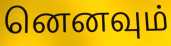
னெனவும்